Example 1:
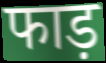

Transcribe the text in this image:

फाड़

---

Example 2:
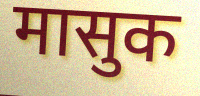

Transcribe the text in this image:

मासुक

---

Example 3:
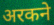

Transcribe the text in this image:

अरकने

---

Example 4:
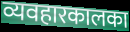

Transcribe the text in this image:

व्यवहारकालका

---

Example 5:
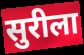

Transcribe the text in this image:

सुरीला